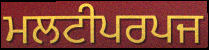
ਮਲਟੀਪਰਪਜ